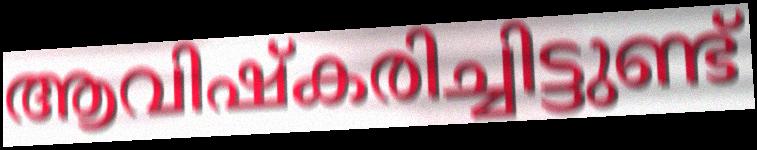
ആവിഷ്കരിച്ചിട്ടുണ്ട്